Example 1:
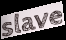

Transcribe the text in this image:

slave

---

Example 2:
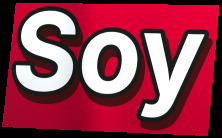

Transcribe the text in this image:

Soy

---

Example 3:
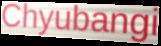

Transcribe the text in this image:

Chyubangi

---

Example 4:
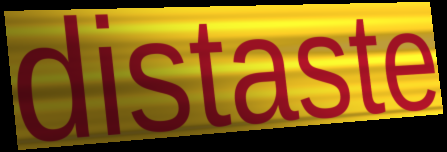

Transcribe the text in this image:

distaste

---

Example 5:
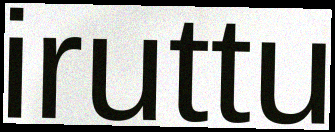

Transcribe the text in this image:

iruttu